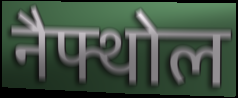
नैफ्थोल